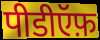
पीडीऍफ़